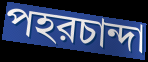
পহরচান্দা